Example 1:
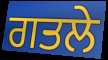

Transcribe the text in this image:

ਗਤਲੇ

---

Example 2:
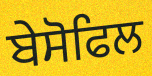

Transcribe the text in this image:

ਬੇਸੋਫਿਲ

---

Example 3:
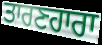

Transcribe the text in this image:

ਤਾਰਣਹਾਰਾ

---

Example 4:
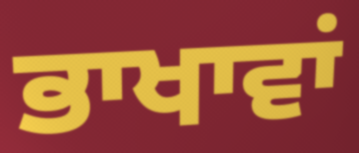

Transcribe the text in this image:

ਭਾਖਾਵਾਂ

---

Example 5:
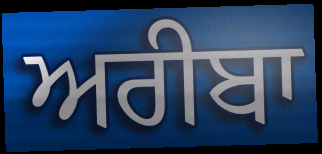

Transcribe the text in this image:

ਅਰੀਬਾ